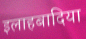
इलाहबादिया